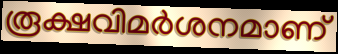
രൂക്ഷവിമർശനമാണ്